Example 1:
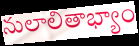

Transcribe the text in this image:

నులాలితాభ్యాం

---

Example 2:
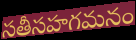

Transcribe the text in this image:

సతీసహగమనం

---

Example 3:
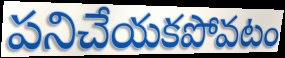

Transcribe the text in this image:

పనిచేయకపోవటం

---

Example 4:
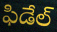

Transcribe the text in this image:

ఫిడేల్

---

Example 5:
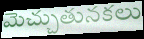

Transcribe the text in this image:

మెచ్చుతునకలు